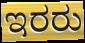
ಇರರು